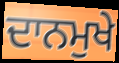
ਦਾਨਮੁਖੇ